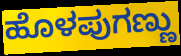
ಹೊಳಪುಗಣ್ಣು